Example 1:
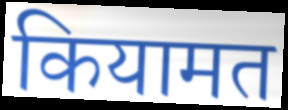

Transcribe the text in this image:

कियामत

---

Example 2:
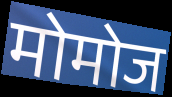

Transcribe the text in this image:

मोमोज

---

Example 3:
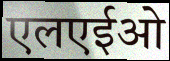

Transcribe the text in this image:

एलएईओ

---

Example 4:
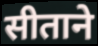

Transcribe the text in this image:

सीताने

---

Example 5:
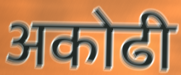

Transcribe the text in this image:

अकोढी